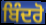
ਬਿੰਦਰੋ